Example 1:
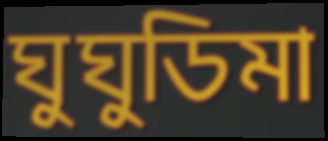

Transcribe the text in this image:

ঘুঘুডিমা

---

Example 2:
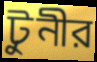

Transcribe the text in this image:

টুনীর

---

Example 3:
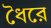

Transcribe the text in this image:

ধৈরে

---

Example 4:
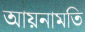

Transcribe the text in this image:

আয়নামতি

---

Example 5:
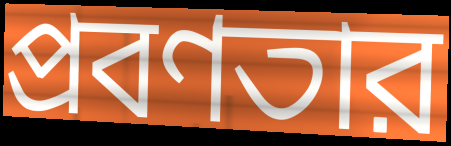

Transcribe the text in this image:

প্রবণতার